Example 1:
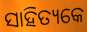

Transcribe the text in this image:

ସାହିତ୍ୟକେ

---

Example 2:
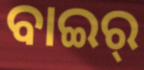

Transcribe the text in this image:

ବାଇର୍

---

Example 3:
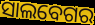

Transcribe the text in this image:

ସାଲବେଗର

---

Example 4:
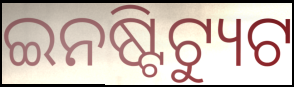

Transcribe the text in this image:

ଇନଷ୍ଟିଟ୍ୟୁଟ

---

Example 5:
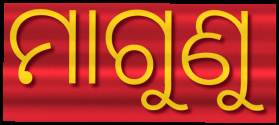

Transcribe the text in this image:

ମାଗୁଣୁ